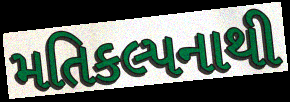
મતિકલ્પનાથી